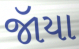
જૉયા